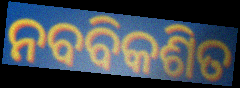
ନବବିକଶିତ